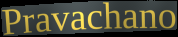
Pravachano